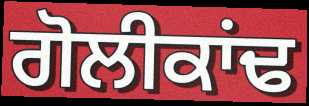
ਗੋਲੀਕਾਂਢ